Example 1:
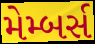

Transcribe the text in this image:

મેમ્બર્સ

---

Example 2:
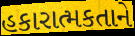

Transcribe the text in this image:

હકારાત્મકતાને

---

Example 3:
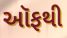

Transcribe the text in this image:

ઑફથી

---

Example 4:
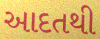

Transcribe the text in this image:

આદતથી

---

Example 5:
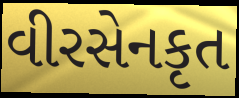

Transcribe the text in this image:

વીરસેનકૃત